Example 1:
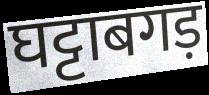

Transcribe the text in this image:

घट्टाबगड़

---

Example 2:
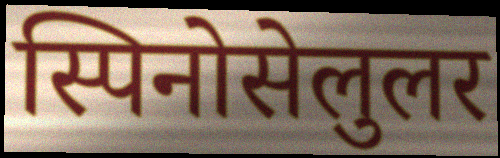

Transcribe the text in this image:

स्पिनोसेलुलर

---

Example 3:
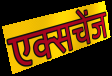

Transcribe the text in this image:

एक्सचेंज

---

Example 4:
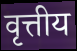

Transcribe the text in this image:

वृत्तीय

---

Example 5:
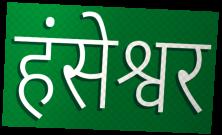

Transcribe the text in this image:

हंसेश्वर